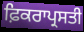
ਫ਼ਿਕਰਾਪ੍ਰਸਤੀ